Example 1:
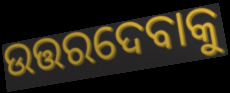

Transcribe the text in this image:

ଉତ୍ତରଦେବାକୁ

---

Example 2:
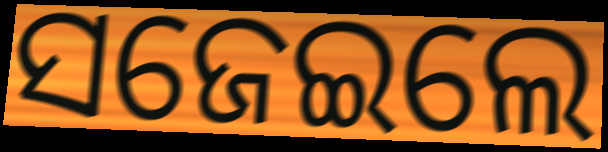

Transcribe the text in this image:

ସଜେଇଲେ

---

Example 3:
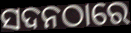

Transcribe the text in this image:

ସଦନଠାରେ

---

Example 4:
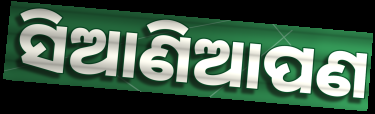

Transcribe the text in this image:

ସିଆଣିଆପଣ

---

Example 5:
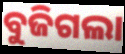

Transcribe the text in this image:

ବୁଜିଗଲା